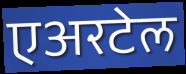
एअरटेल